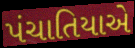
પંચાતિયાએ